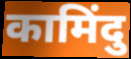
कामिंदु